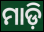
ମାଡ଼ି